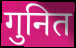
गुनित